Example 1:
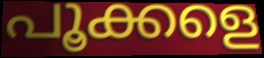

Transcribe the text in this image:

പൂക്കളെ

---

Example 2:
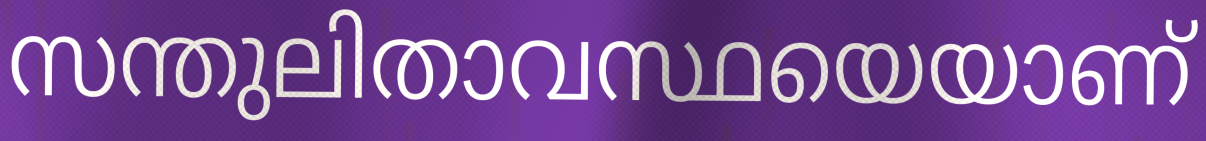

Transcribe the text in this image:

സന്തുലിതാവസ്ഥയെയാണ്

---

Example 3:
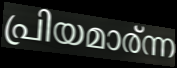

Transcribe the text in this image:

പ്രിയമാര്ന്ന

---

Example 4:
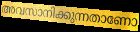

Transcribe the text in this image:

അവസാനിക്കുന്നതാണോ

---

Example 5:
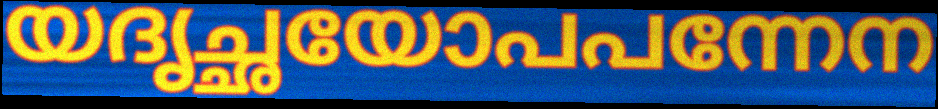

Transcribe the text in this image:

യദൃച്ഛയോപപന്നേന